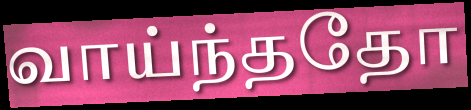
வாய்ந்ததோ